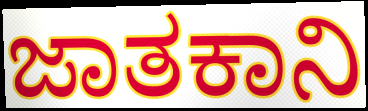
ಜಾತಕಾನಿ